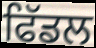
ਫਿੱਡਲ